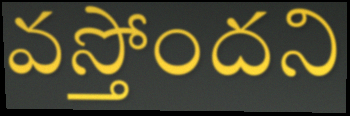
వస్తోందని